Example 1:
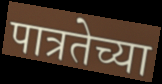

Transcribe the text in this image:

पात्रतेच्या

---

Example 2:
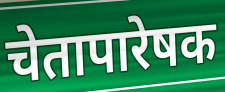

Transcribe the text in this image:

चेतापारेषक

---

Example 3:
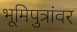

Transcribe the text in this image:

भूमिपुत्रांवर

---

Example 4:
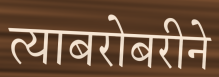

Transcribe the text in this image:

त्याबरोबरीने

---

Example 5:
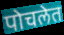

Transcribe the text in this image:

पोचलेत